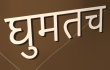
घुमतच